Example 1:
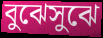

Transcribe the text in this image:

বুঝেসুঝে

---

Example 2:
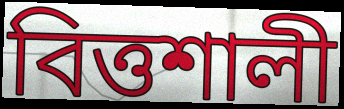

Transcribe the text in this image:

বিত্তশালী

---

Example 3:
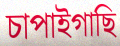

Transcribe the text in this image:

চাপাইগাছি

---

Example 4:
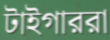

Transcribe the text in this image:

টাইগাররা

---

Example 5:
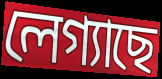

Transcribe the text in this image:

লেগ্যাছে